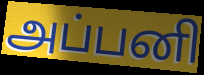
அப்பனி